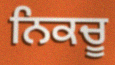
ਨਿਕਚੂ